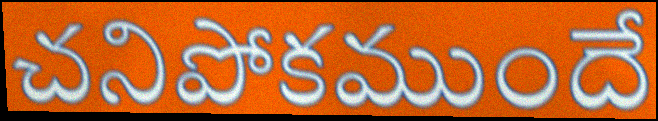
చనిపోకముందే